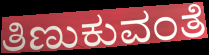
ತಿಣುಕುವಂತೆ